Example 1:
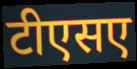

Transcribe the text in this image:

टीएसए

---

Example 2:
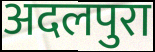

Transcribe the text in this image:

अदलपुरा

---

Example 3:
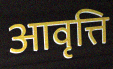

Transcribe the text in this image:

आवृत्ति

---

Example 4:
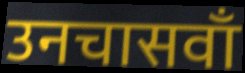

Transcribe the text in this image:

उनचासवाँ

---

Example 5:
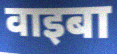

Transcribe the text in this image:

वाइबा